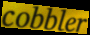
cobbler